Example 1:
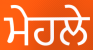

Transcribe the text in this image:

ਮੇਹਲੇ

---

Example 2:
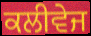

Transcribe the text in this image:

ਕਲੀਵੇਜ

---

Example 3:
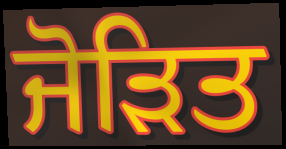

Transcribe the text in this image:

ਜੋੜਿਤ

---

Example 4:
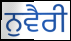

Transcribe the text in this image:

ਨੁਵੈਰੀ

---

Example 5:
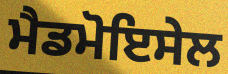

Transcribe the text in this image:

ਮੈਡਮੋਇਸੇਲ